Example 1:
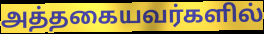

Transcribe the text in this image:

அத்தகையவர்களில்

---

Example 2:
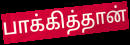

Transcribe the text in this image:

பாக்கித்தான்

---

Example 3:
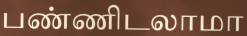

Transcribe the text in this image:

பண்ணிடலாமா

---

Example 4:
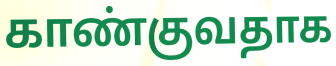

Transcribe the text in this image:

காண்குவதாக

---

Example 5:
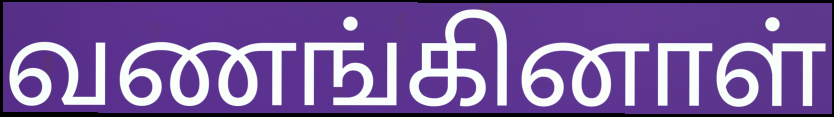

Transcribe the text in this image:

வணங்கினாள்